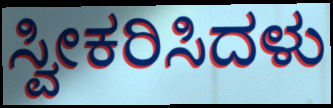
ಸ್ವೀಕರಿಸಿದಳು